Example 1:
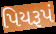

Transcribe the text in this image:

પિયરૂપં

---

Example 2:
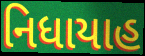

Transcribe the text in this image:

નિધાયાહ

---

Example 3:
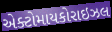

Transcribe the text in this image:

એક્ટોમાયકોરાઇઝલ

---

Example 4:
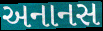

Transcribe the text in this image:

અનાનસ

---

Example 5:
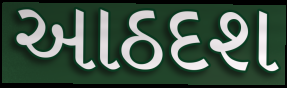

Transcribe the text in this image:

આઠદશ